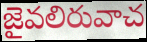
జైవలిరువాచ